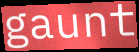
gaunt